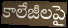
కాలేజీలపై